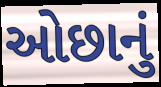
ઓછાનું